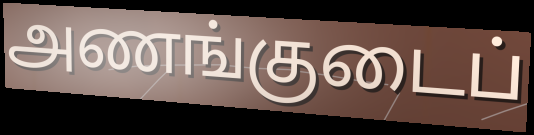
அணங்குடைப்